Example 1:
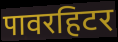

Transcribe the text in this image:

पावरहिटर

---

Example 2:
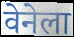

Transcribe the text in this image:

वेनेला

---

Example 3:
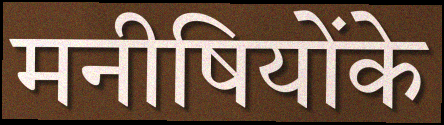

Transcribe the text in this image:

मनीषियोंके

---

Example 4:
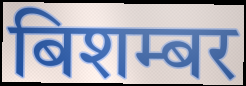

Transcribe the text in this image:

बिशम्बर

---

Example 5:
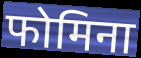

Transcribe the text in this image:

फोमिना